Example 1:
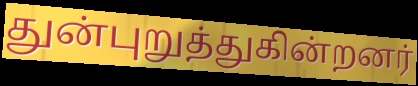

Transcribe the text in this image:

துன்புறுத்துகின்றனர்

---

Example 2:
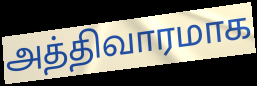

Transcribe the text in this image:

அத்திவாரமாக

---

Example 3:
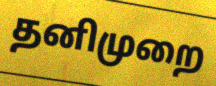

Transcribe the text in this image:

தனிமுறை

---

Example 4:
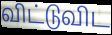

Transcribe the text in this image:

விட்டுவிட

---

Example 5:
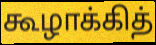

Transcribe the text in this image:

கூழாக்கித்